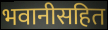
भवानीसहित